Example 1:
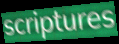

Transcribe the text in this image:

scriptures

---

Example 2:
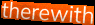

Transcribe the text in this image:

therewith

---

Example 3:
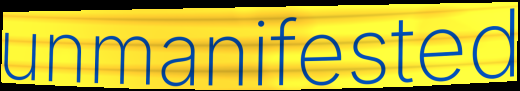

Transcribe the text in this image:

unmanifested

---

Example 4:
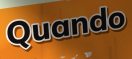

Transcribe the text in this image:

Quando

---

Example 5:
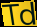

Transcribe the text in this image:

Td